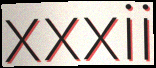
xxxii